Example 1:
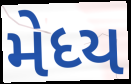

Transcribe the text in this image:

મેધ્ય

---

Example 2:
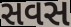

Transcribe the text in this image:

સવસ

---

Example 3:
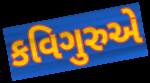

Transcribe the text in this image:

કવિગુરુએ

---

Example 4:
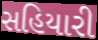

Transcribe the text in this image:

સહિયારી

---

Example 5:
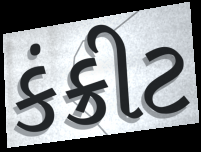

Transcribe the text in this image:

કંક્રીટ